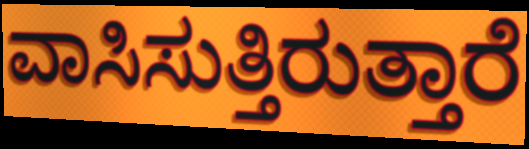
ವಾಸಿಸುತ್ತಿರುತ್ತಾರೆ